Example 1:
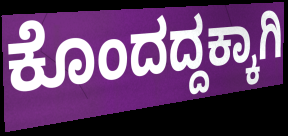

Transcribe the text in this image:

ಕೊಂದದ್ದಕ್ಕಾಗಿ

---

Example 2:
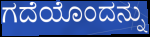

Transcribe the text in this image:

ಗದೆಯೊಂದನ್ನು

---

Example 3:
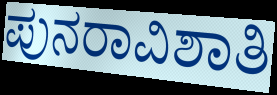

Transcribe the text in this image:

ಪುನರಾವಿಶಾತಿ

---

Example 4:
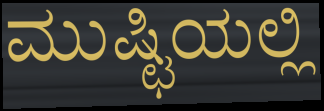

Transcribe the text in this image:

ಮುಷ್ಟಿಯಲ್ಲಿ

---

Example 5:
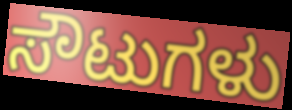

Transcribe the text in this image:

ಸೌಟುಗಳು